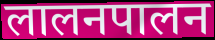
लालनपालन